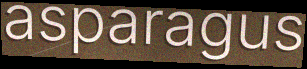
asparagus